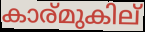
കാര്മുകില്